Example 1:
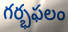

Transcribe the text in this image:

గర్భఫలం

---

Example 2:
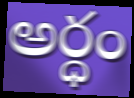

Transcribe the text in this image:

అర్ధం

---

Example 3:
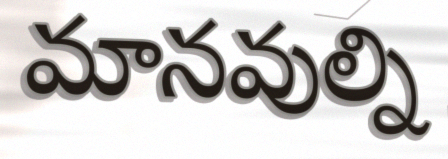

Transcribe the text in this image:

మానవుల్ని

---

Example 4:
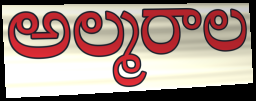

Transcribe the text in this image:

అల్మరాల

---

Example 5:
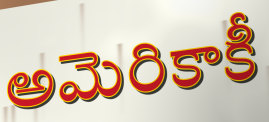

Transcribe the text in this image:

అమెరికాకీ